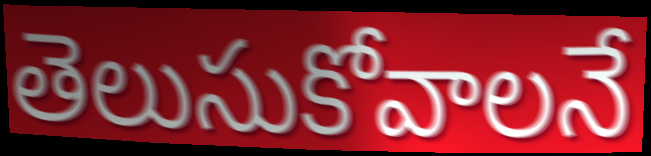
తెలుసుకోవాలనే